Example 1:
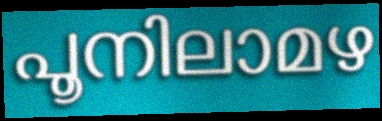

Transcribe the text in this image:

പൂനിലാമഴ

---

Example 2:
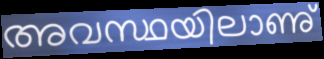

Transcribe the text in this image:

അവസ്ഥയിലാണു്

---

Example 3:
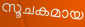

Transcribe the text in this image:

സൂചകമായ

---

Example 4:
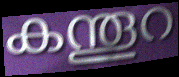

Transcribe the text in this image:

കന്തൂറ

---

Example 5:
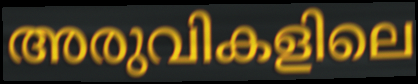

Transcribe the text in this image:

അരുവികളിലെ